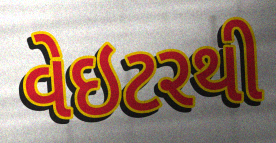
વેઇટરથી